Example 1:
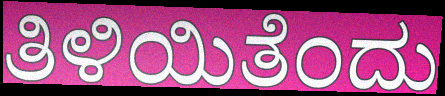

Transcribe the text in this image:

ತಿಳಿಯಿತೆಂದು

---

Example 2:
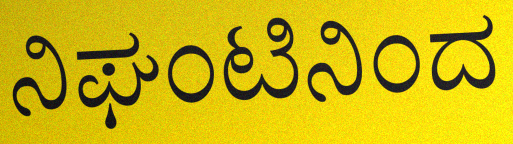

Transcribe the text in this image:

ನಿಘಂಟಿನಿಂದ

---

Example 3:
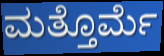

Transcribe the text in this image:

ಮತ್ತೊರ್ಮೆ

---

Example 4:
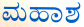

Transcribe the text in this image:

ಮಹಾಶ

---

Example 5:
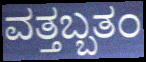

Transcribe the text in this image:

ವತ್ತಬ್ಬತಂ